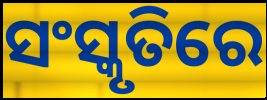
ସଂସ୍କୃତିରେ